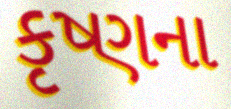
કૃષ્ણના